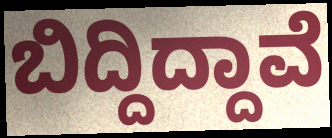
ಬಿದ್ದಿದ್ದಾವೆ